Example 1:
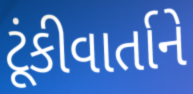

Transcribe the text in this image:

ટૂંકીવાર્તાને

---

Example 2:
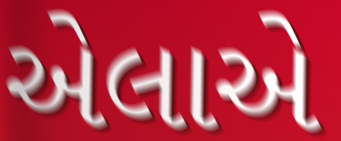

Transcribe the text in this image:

એલાએ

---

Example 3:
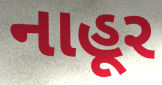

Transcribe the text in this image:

નાહૂર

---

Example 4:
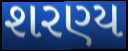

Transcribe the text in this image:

શરણ્ય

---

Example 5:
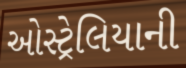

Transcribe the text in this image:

ઓસ્ટ્રેલિયાની